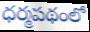
ధర్మపథంలో